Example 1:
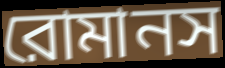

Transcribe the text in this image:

রোমানস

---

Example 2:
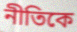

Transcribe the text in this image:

নীতিকে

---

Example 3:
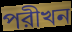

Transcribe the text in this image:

পরীখন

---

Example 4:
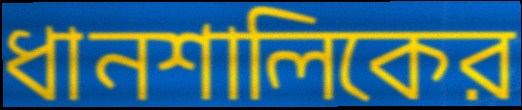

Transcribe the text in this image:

ধানশালিকের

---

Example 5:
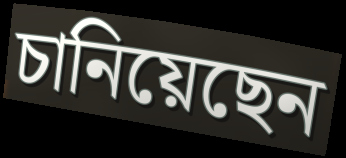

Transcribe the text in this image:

চানিয়েছেন